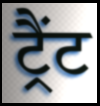
ट्रैंट